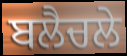
ਬਲੈਚਲੇ